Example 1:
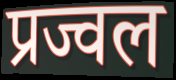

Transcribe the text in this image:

प्रज्वल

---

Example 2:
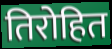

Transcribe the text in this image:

तिरोहित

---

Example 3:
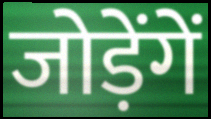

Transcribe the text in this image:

जोड़ेंगें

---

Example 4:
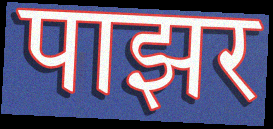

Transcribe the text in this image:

पाझर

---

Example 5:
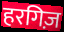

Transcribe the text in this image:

हरगिज़